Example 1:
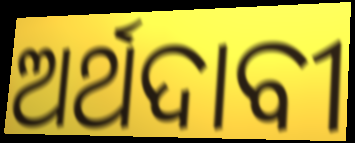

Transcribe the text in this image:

ଅର୍ଥଦାବୀ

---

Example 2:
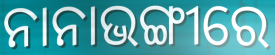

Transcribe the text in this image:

ନାନାଭଙ୍ଗୀରେ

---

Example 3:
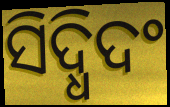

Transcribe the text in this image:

ସିଦ୍ଧିଦଂ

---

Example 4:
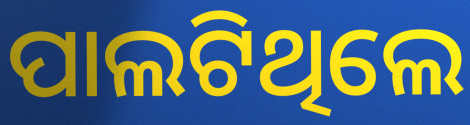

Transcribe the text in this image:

ପାଲଟିଥିଲେ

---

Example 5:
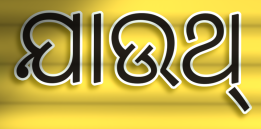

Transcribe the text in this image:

ଯାଉଥ୍